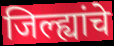
जिल्ह्यांचे